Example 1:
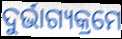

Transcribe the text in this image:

ଦୁର୍ଭାଗ୍ୟକ୍ରମେ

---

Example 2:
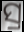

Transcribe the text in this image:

ସ୍ର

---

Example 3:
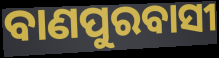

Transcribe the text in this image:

ବାଣପୁରବାସୀ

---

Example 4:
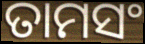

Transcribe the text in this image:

ତାମସଂ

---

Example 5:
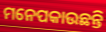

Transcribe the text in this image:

ମନେପକାଉଛନ୍ତି